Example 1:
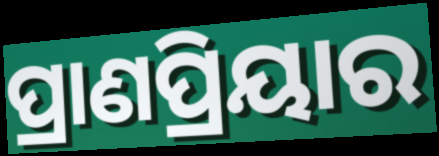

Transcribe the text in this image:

ପ୍ରାଣପ୍ରିୟାର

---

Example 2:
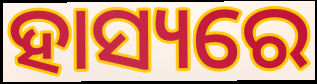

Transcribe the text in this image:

ହାସ୍ୟରେ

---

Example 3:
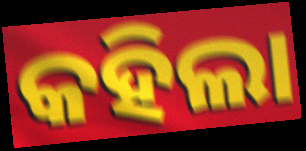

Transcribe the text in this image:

କହିଲା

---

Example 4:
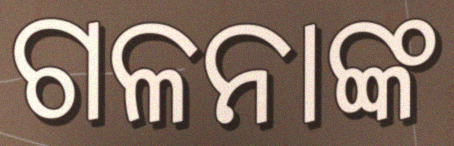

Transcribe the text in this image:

ଗଳନାଙ୍କ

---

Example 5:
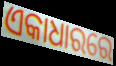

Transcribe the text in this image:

ଏକାଧାରରେ